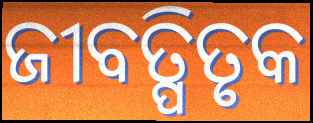
ଜୀବତ୍ପିତୃକ